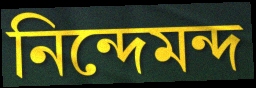
নিন্দেমন্দ